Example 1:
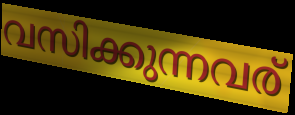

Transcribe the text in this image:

വസിക്കുന്നവര്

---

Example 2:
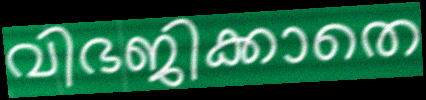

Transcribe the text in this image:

വിഭജിക്കാതെ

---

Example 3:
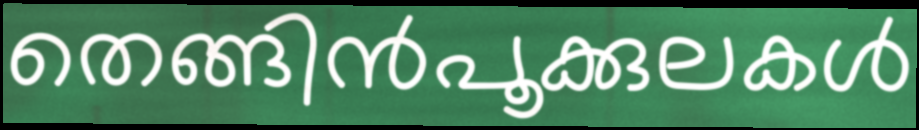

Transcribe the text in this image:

തെങ്ങിൻപൂക്കുലകൾ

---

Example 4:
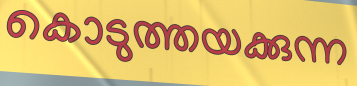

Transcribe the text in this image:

കൊടുത്തയക്കുന്ന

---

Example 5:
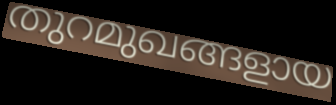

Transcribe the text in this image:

തുറമുഖങ്ങളായ